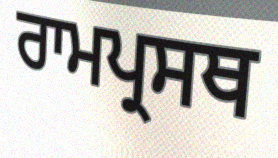
ਰਾਮਪ੍ਰਸਥ